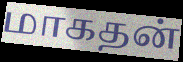
மாகதன்